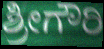
ಶ್ರೀಗೌರಿ